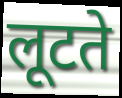
लूटते